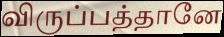
விருப்பத்தானே